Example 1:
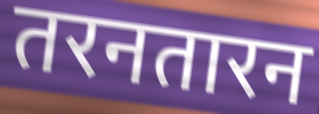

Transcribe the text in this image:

तरनतारन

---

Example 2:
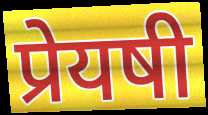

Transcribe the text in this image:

प्रेयषी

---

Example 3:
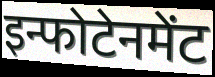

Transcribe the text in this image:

इन्फोटेनमेंट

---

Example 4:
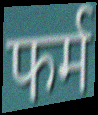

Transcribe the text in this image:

फर्म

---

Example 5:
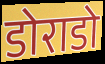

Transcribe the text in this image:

डोराडो